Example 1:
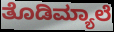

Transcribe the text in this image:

ತೊಡಿಮ್ಯಾಲೆ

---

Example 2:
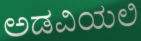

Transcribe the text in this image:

ಅಡವಿಯಲಿ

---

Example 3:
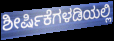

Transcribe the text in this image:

ಶೀರ್ಷಿಕೆಗಳಡಿಯಲ್ಲಿ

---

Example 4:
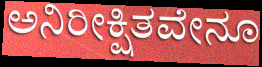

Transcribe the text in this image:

ಅನಿರೀಕ್ಷಿತವೇನೂ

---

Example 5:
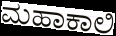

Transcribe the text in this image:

ಮಹಾಕಾಲಿ